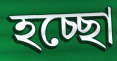
হচ্ছো